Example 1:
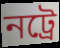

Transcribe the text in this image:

নট্ৰে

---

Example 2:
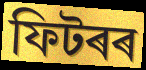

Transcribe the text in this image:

ফিটৰৰ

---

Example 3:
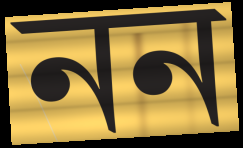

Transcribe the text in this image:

নন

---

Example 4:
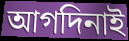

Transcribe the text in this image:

আগদিনাই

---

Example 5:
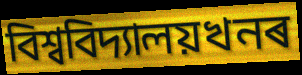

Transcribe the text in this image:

বিশ্ববিদ্যালয়খনৰ